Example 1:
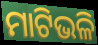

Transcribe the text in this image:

ମାଟିଭଳି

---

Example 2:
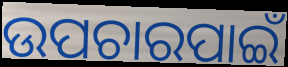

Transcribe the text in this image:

ଉପଚାରପାଇଁ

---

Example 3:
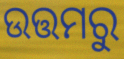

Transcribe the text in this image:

ଉତ୍ତମରୁ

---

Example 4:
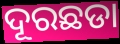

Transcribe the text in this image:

ଦୂରଛଡା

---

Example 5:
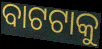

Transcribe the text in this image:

ବାଟଟାକୁ